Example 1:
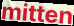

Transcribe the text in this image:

mitten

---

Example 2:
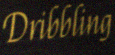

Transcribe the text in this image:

Dribbling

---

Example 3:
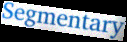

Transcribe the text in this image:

Segmentary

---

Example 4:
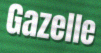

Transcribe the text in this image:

Gazelle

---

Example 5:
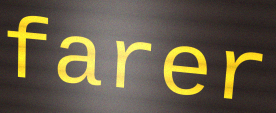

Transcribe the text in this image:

farer